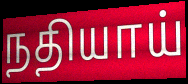
நதியாய்